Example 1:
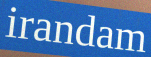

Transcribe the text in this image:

irandam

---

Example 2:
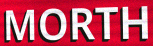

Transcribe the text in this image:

MORTH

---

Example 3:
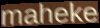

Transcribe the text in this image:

maheke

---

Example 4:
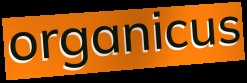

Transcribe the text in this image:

organicus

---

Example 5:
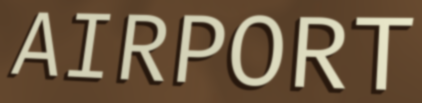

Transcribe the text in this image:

AIRPORT